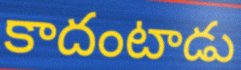
కాదంటాడు